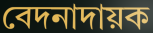
বেদনাদায়ক